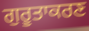
ਗੁਰੂਤਾਕਰਣ